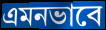
এমনভাবে